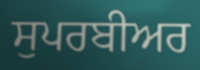
ਸੁਪਰਬੀਅਰ